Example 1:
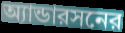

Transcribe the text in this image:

অ্যান্ডারসনের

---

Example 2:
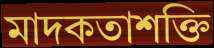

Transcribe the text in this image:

মাদকতাশক্তি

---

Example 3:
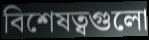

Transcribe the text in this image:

বিশেষত্বগুলো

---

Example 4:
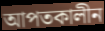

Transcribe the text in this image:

আপতকালীন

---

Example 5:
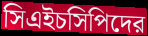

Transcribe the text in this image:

সিএইচসিপিদের